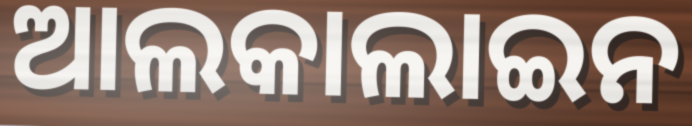
ଆଲକାଲାଇନ